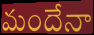
మందేనా